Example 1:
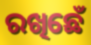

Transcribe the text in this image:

ରଖିଛେଁ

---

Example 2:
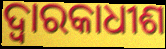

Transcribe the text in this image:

ଦ୍ୱାରକାଧୀଶ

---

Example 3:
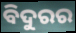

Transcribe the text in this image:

ବିଦୁରର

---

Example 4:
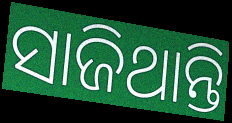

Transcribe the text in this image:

ସାଜିଥାନ୍ତି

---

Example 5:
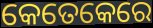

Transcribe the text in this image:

କେତେକେରେ